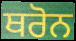
ਥਰੋਨ